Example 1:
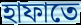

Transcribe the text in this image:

হাফাতে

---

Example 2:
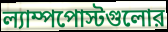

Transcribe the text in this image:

ল্যাম্পপোস্টগুলোর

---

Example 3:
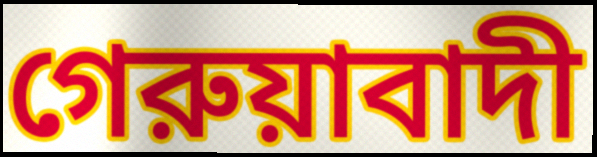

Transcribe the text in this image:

গেরুয়াবাদী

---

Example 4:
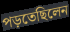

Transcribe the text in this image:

পড়তেছিলেন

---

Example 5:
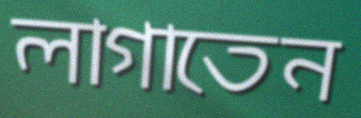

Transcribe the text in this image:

লাগাতেন